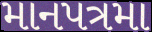
માનપત્રમા